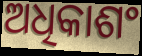
ଅଧିକାଶଂ